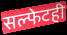
सल्फेटही